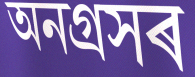
অনগ্ৰসৰ